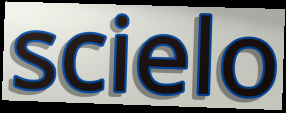
scielo